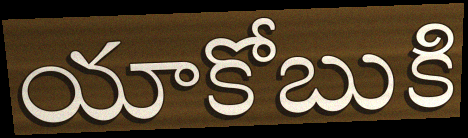
యాకోబుకి